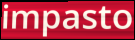
impasto